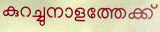
കുറച്ചുനാളത്തേക്ക്